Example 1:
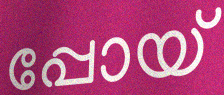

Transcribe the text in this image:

പ്പോയ്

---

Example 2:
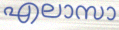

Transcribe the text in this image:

എലാസാ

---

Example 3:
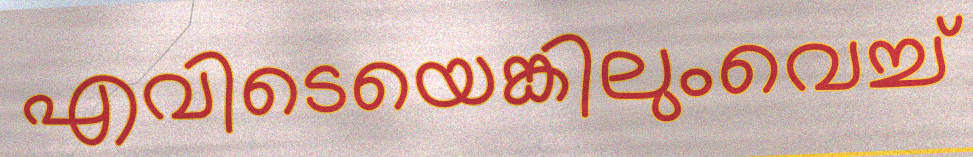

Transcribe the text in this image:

എവിടെയെങ്കിലുംവെച്ച്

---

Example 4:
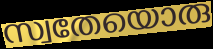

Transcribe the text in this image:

സ്വതേയൊരു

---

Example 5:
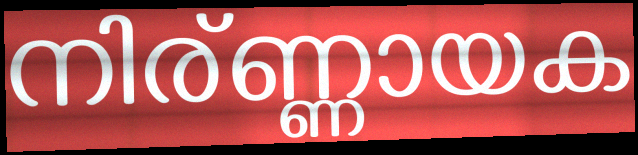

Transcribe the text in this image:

നിര്ണ്ണായക